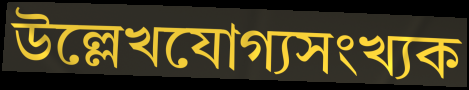
উল্লেখযোগ্যসংখ্যক